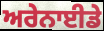
ਅਰੇਨਾਈਡੇ